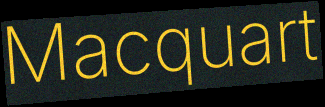
Macquart